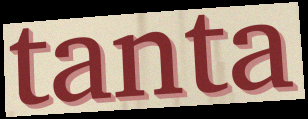
tanta